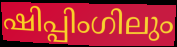
ഷിപ്പിംഗിലും